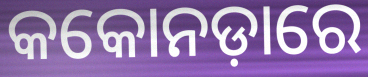
କକୋନଡ଼ାରେ